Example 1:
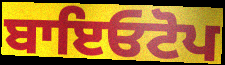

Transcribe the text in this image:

ਬਾਇਓਟੋਪ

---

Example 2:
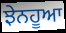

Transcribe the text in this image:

ਝੇਨਹੂਆ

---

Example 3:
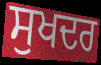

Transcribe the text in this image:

ਸੁਖਦਰ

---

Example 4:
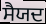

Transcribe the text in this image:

ਸੈਯਦ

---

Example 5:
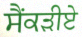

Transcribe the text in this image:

ਸੈਂਕੜੀਏ